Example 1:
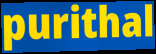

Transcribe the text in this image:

purithal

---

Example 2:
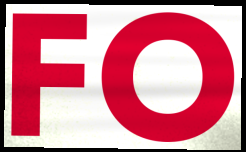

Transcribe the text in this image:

FO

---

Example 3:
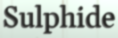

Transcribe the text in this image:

Sulphide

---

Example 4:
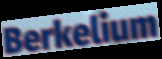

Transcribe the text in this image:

Berkelium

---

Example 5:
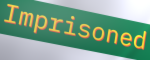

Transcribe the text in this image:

Imprisoned